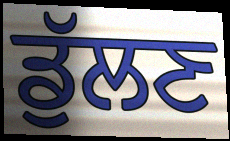
ਡੁੱਲਣ